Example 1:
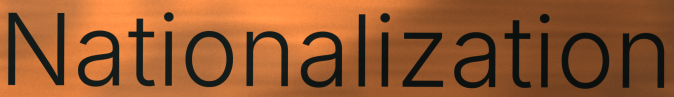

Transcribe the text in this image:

Nationalization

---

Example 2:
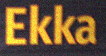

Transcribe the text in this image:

Ekka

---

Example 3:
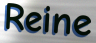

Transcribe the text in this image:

Reine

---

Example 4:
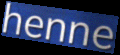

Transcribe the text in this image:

henne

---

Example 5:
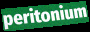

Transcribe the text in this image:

peritonium